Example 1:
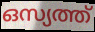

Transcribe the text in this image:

ഒസ്യത്ത്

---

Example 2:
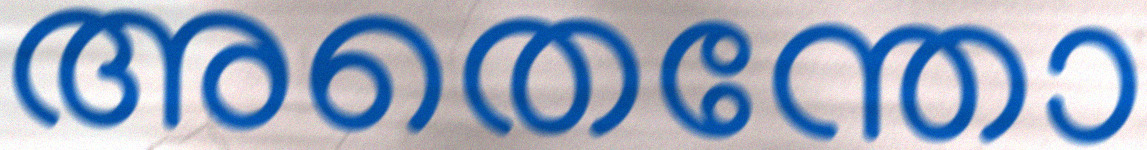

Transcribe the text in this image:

അതെന്തോ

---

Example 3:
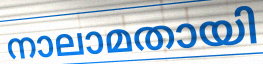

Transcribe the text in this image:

നാലാമതായി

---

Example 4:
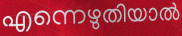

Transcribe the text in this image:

എന്നെഴുതിയാൽ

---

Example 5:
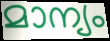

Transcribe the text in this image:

മാന്യം